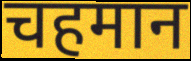
चहमान